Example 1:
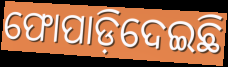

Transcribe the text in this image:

ଫୋପାଡ଼ିଦେଇଛି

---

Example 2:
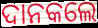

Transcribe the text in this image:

ଦାନକଲେ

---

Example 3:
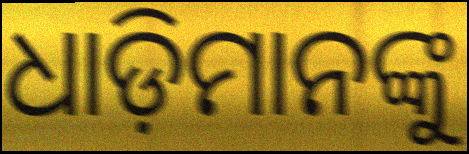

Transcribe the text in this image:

ଧାଡ଼ିମାନଙ୍କୁ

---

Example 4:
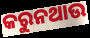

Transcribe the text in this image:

କରୁନଥାଉ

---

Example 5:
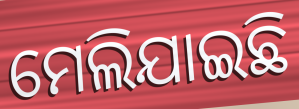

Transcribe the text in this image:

ମେଲିଯାଇଛି